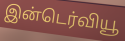
இன்டெர்வியூ